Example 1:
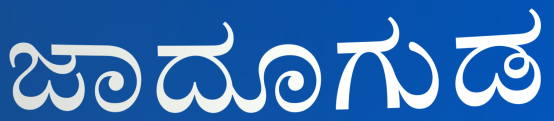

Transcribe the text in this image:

ಜಾದೂಗುಡ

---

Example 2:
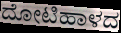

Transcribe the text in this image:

ದೋಟಿಹಾಳದ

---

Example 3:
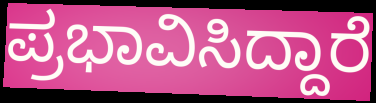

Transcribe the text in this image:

ಪ್ರಭಾವಿಸಿದ್ದಾರೆ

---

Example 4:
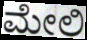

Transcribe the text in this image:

ಮೇಲಿ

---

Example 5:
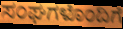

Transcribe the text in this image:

ಸಂಘಗಳೊಂದಿಗೆ